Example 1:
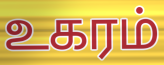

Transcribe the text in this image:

உகரம்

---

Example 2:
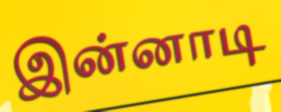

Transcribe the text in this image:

இன்னாடி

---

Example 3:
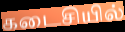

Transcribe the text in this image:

கடைசியில்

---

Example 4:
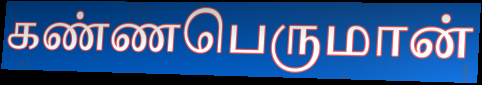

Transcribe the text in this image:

கண்ணபெருமான்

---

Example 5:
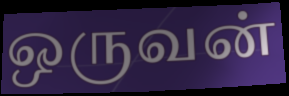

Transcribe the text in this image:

ஒருவன்